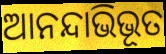
ଆନନ୍ଦାଭିଭୂତ